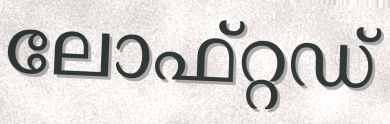
ലോഫ്റ്റഡ്